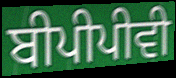
ਬੀਪੀਪੀਵੀ